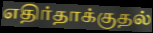
எதிர்தாக்குதல்